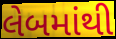
લેબમાંથી